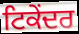
ਟਿਕੇਂਦਰ